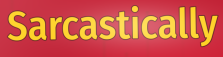
Sarcastically